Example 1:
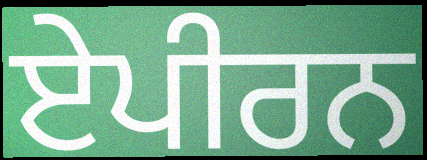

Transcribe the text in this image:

ਏਪੀਰਨ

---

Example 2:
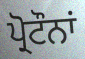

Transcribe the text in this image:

ਪ੍ਰੋਟੌਨਾਂ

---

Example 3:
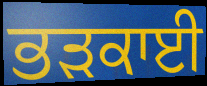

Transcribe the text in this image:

ਭੜਕਾਈ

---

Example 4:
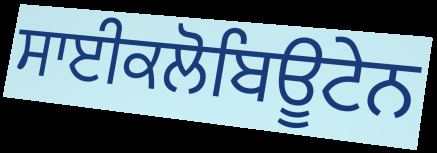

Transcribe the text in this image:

ਸਾਈਕਲੋਬਿਊਟੇਨ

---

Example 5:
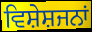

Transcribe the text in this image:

ਵਿਸ਼ੇਸ਼ਜਨਾਂ